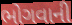
ભોગવાની